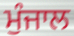
ਮੁੰਜਾਲ